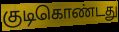
குடிகொண்டது